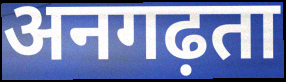
अनगढ़ता